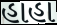
હાહા